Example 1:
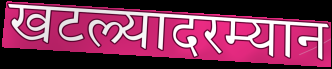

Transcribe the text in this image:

खटल्यादरम्यान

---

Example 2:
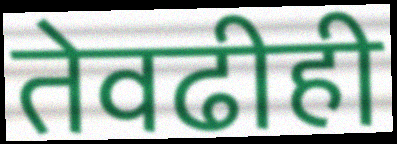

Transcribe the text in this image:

तेवढीही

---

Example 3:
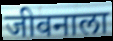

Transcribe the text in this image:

जीवनाला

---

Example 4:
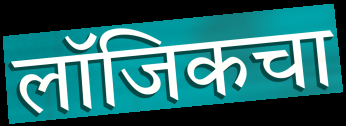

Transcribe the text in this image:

लॉजिकचा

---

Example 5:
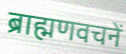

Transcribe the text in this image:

ब्राह्मणवचनें